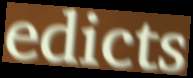
edicts